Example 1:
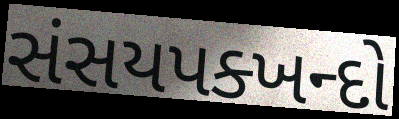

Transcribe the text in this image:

સંસયપક્ખન્દો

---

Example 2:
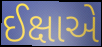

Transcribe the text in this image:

ઈક્ષાએ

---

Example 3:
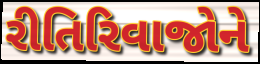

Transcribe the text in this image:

રીતિરિવાજોને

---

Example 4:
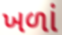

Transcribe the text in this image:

ખળાં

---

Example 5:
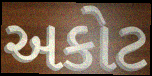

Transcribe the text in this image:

અકોટ